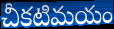
చీకటిమయం